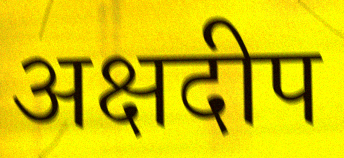
अक्षदीप